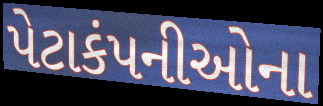
પેટાકંપનીઓના